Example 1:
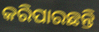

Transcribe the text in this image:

କରିପାରଛନ୍ତି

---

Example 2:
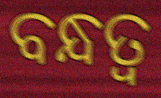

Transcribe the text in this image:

ବନ୍ଧତ୍ୱ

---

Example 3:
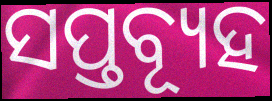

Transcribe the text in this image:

ସପ୍ତବ୍ୟୂହ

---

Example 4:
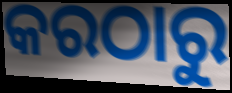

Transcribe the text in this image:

କରଠାରୁ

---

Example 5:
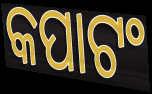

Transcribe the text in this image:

କପାଟଂ